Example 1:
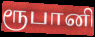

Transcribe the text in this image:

ரூபானி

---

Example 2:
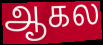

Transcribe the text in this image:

ஆகல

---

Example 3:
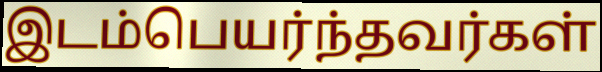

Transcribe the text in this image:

இடம்பெயர்ந்தவர்கள்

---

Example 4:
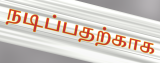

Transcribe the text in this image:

நடிப்பதற்காக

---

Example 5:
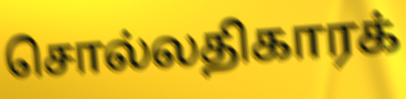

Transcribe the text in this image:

சொல்லதிகாரக்